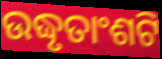
ଉଦ୍ଧୃତାଂଶଟି